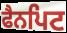
ਫੈਨਪਿਟ